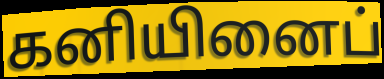
கனியினைப்